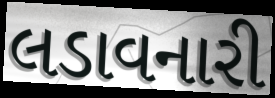
લડાવનારી